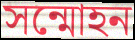
সন্মোহন